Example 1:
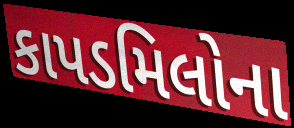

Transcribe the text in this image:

કાપડમિલોના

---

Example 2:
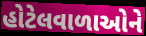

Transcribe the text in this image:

હોટેલવાળાઓને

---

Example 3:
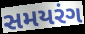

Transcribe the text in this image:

સમયરંગ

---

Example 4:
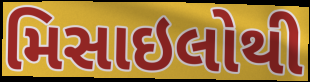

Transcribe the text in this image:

મિસાઇલોથી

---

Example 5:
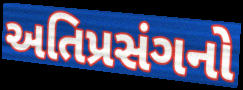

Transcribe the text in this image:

અતિપ્રસંગનો